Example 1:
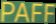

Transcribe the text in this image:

PAFF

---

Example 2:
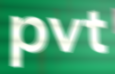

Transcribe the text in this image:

pvt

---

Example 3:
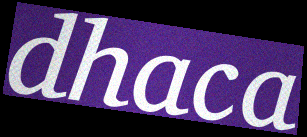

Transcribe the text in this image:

dhaca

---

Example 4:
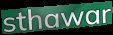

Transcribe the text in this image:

sthawar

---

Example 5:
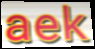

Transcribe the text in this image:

aek